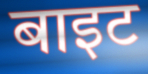
बाइट